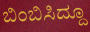
ಬಿಂಬಿಸಿದ್ದೂ